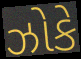
ઝોકે